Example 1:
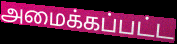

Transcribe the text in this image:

அமைக்கப்பட்ட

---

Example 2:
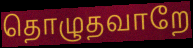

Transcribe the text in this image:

தொழுதவாறே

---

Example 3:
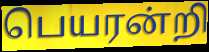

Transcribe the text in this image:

பெயரன்றி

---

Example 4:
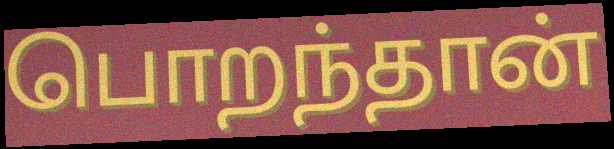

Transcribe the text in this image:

பொறந்தான்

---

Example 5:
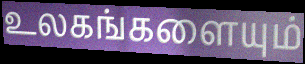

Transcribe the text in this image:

உலகங்களையும்